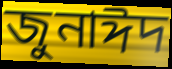
জুনাঈদ